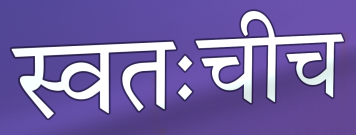
स्वतःचीच